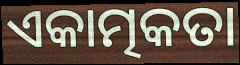
ଏକାତ୍ମକତା